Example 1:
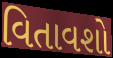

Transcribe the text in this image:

વિતાવશો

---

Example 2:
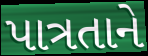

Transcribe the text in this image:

પાત્રતાને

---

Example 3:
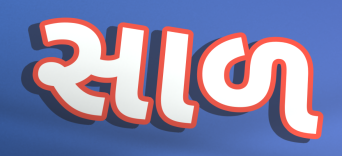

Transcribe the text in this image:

સાળ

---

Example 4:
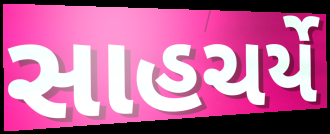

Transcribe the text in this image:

સાહચર્યે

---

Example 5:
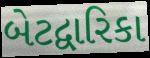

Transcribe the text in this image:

બેટદ્વારિકા